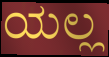
ಯಲ್ಲ